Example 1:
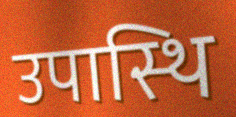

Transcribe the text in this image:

उपास्थि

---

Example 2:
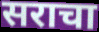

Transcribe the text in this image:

सराचा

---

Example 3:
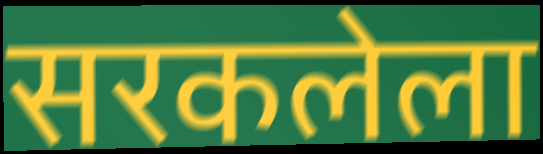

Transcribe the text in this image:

सरकलेला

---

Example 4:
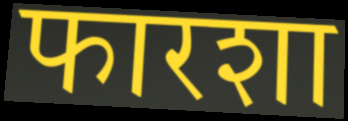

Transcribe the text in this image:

फारशा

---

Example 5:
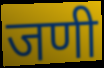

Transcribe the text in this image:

जणी